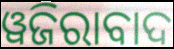
ୱଜିରାବାଦ